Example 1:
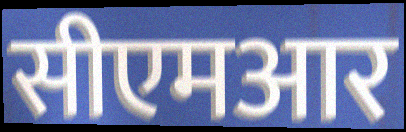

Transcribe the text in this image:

सीएमआर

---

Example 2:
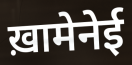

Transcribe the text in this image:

ख़ामेनेई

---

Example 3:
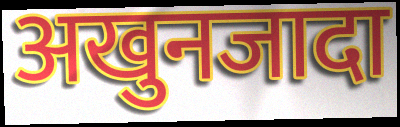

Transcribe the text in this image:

अखुनजादा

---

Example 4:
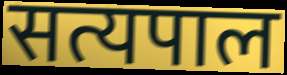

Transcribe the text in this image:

सत्यपाल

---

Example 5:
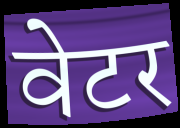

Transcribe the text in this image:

वेटर